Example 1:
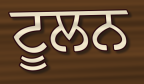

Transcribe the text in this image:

ਟੂਲਨ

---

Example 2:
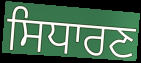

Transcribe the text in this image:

ਸਿਧਾਰਣ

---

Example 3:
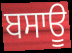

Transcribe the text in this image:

ਬਸਾਊ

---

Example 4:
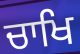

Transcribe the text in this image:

ਚਾਖਿ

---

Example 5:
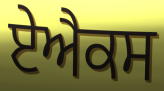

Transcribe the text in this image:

ਏਐਕਸ